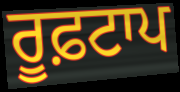
ਰੂਫ਼ਟਾਪ